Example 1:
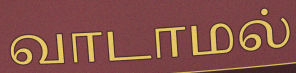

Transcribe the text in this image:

வாடாமல்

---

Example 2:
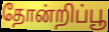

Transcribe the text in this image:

தோன்றிப்பூ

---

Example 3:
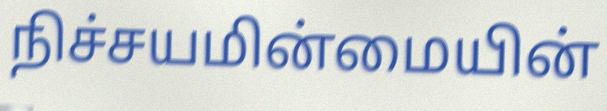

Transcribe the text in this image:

நிச்சயமின்மையின்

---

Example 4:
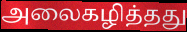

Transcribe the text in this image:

அலைகழித்தது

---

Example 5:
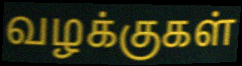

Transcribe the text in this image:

வழக்குகள்